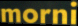
morni